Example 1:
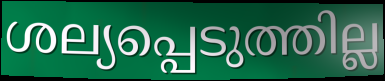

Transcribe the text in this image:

ശല്യപ്പെടുത്തില്ല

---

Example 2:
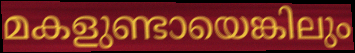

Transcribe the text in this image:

മകളുണ്ടായെങ്കിലും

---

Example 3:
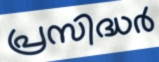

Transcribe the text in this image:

പ്രസിദ്ധർ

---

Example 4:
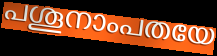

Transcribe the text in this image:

പശൂനാംപതയേ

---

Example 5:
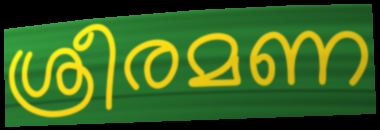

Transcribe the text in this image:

ശ്രീരമണ